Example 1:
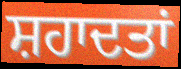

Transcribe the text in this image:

ਸ਼ਹਾਦਤਾਂ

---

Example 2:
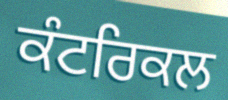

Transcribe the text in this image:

ਕੰਟਰਿਕਲ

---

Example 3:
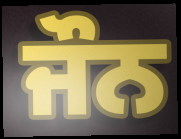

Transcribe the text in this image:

ਜੌਨ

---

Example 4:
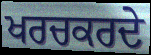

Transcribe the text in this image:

ਖਰਚਕਰਦੇ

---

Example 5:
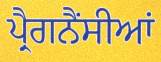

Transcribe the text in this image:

ਪ੍ਰੈਗਨੈਂਸੀਆਂ